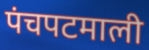
पंचपटमाली